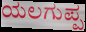
ಯಲಗುಪ್ಪ